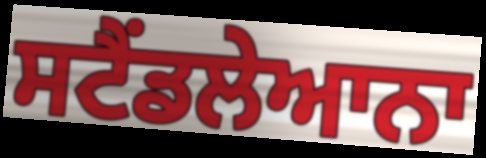
ਸਟੈਂਡਲੇਆਨਾ